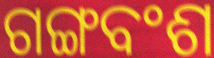
ଗଙ୍ଗବଂଶ